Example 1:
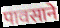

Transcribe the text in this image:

पावसाने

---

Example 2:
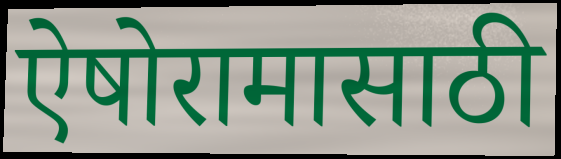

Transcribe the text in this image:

ऐषोरामासाठी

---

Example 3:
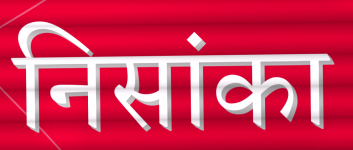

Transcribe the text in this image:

निसांका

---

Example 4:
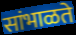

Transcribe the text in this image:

सांभाळते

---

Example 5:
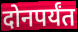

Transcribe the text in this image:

दोनपर्यंत